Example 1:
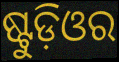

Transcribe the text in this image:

ଷ୍ଟୁଡ଼ିଓର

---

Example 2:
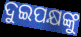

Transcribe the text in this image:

ଦୁଇପକ୍ଷଙ୍କୁ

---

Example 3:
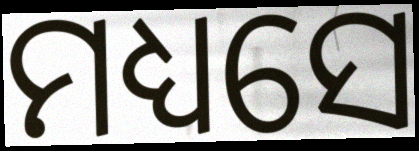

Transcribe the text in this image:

ମଧ୍ୟସେ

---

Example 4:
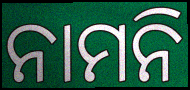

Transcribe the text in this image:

ନାମନି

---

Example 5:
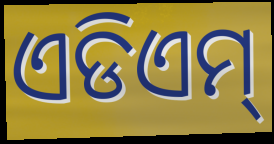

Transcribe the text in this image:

ଏଡିଏମ୍